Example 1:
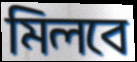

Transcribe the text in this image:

মিলবে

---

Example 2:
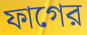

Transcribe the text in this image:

ফাগের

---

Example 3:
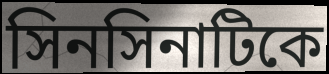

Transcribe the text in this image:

সিনসিনাটিকে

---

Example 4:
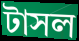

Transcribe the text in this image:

টাসল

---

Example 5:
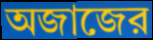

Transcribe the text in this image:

অজাজের